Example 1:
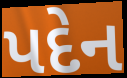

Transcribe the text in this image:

પદેન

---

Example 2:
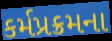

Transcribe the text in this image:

કર્મપ્રક્રમના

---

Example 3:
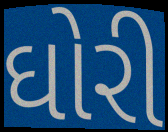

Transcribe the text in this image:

ઘોરી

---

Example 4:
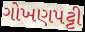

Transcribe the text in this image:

ગોખણપટ્ટી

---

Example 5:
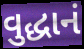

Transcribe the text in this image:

વુદ્ધાનં